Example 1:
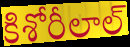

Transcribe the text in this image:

కిశోరీలాల్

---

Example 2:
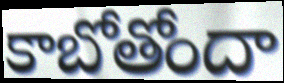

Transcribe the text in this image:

కాబోతోందా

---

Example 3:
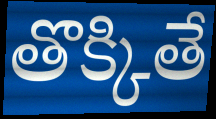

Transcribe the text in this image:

తొక్కితే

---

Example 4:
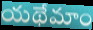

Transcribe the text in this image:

యథేమాం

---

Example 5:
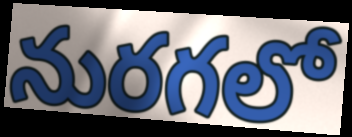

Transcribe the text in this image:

నురగలో